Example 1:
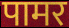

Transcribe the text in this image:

पामर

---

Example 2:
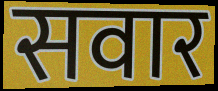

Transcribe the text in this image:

सवार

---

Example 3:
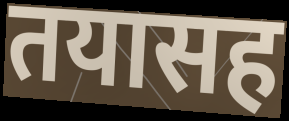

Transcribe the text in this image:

तयासह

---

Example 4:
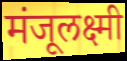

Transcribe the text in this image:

मंजूलक्ष्मी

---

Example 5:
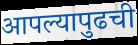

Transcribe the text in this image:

आपल्यापुढची